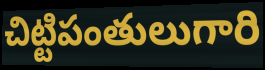
చిట్టిపంతులుగారి